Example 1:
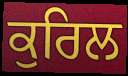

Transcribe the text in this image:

ਕੁਰਿਲ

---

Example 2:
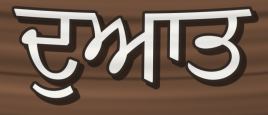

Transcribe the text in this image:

ਦੁਆਤ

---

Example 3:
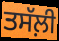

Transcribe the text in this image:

ਤਸੱਲ਼ੀ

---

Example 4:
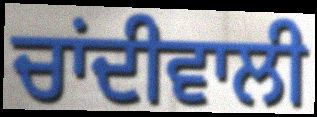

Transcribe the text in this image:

ਚਾਂਦੀਵਾਲੀ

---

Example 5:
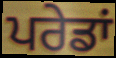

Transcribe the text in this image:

ਪਰੇਡਾਂ